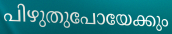
പിഴുതുപോയേക്കും